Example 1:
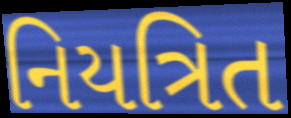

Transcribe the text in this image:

નિયત્રિત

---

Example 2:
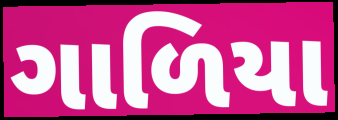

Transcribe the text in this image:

ગાળિયા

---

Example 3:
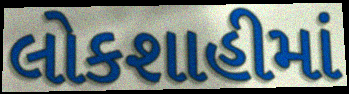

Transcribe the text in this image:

લોકશાહીમાં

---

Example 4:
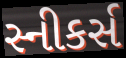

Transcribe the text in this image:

સ્નીકર્સ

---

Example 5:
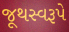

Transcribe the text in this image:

જૂથસ્વરૂપે